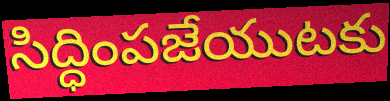
సిద్ధింపజేయుటకు